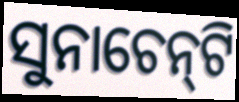
ସୁନାଚେନ୍‍ଟି